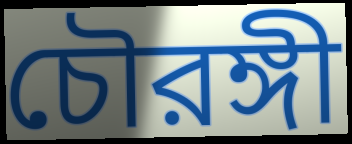
চৌরঙ্গী